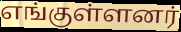
எங்குள்ளனர்